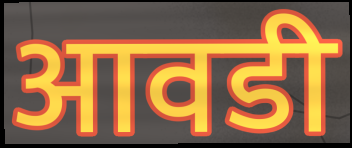
आवडी